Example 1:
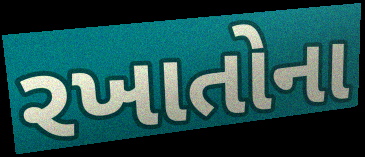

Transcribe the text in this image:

રખાતોના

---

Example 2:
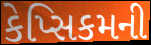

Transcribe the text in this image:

કેપ્સિકમની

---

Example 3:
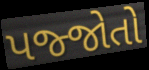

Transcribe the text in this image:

પજ્જોતો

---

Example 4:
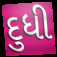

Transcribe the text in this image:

દુધી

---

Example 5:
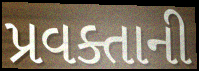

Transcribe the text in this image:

પ્રવક્તાની